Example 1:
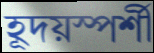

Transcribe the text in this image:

হূদয়স্পর্শী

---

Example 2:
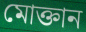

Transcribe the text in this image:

মোক্তান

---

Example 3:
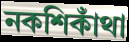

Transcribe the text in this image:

নকশিকাঁথা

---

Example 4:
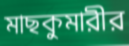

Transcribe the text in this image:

মাছকুমারীর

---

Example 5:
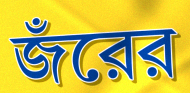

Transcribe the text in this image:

জঁরের